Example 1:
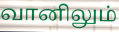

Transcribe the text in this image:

வானிலும்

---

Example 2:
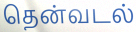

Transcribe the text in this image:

தென்வடல்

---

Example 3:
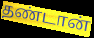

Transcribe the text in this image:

தண்டான்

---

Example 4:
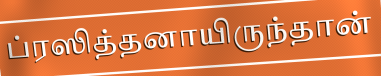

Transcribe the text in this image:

ப்ரஸித்தனாயிருந்தான்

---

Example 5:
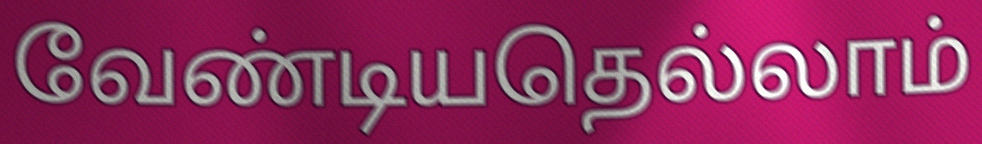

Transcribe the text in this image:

வேண்டியதெல்லாம்